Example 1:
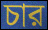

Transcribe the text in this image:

চার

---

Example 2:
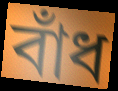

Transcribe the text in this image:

বাঁধ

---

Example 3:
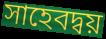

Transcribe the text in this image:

সাহেবদ্বয়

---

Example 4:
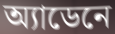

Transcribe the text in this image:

অ্যাডেনে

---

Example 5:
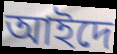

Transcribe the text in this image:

আইদে